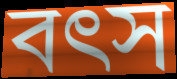
বৎস